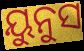
ୟୁନୁସ